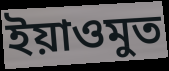
ইয়াওমুত